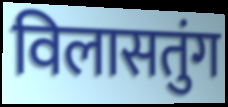
विलासतुंग